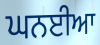
ਘਨਈਆ